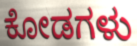
ಕೋಡಗಳು